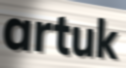
artuk